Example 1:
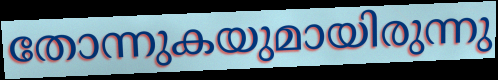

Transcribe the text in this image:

തോന്നുകയുമായിരുന്നു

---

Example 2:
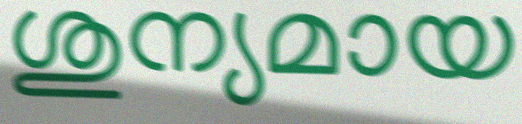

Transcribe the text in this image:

ശുന്യമായ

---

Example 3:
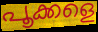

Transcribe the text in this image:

പൂക്കളെ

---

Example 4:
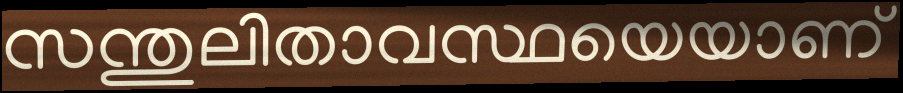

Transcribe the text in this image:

സന്തുലിതാവസ്ഥയെയാണ്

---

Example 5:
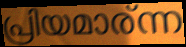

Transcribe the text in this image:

പ്രിയമാര്ന്ന